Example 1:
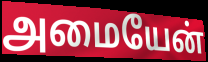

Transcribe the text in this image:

அமையேன்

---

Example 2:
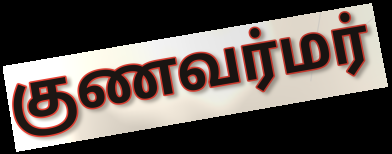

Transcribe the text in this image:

குணவர்மர்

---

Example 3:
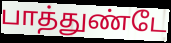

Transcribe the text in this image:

பாத்துண்டே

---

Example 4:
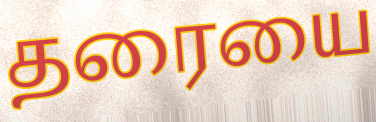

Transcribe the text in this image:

தரையை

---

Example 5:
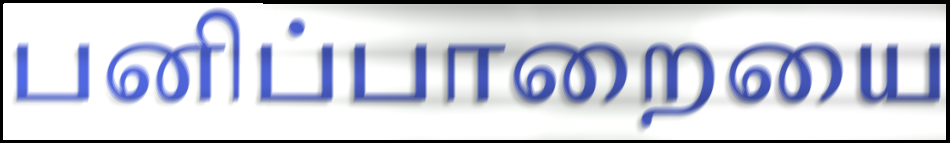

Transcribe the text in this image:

பனிப்பாறையை